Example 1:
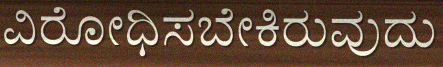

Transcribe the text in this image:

ವಿರೋಧಿಸಬೇಕಿರುವುದು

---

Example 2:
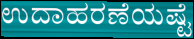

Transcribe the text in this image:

ಉದಾಹರಣೆಯಷ್ಟೆ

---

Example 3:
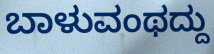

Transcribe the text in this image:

ಬಾಳುವಂಥದ್ದು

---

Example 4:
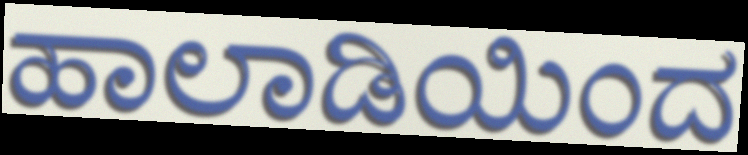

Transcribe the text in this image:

ಹಾಲಾಡಿಯಿಂದ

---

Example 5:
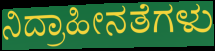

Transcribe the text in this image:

ನಿದ್ರಾಹೀನತೆಗಳು